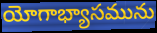
యోగాభ్యాసమును